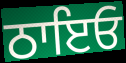
ਠਾਇਓ